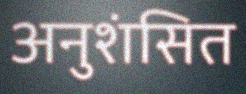
अनुशंसित